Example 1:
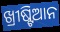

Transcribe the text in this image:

ଖ୍ରୀଷ୍ଟିଆନ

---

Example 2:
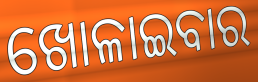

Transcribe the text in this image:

ଖୋଳାଇବାର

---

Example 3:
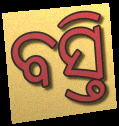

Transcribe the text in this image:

ବସ୍ତି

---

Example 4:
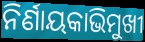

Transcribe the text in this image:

ନିର୍ଣାୟକାଭିମୁଖୀ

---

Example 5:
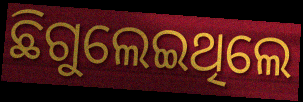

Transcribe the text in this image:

ଛିଗୁଲେଇଥିଲେ